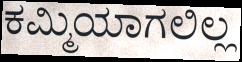
ಕಮ್ಮಿಯಾಗಲಿಲ್ಲ